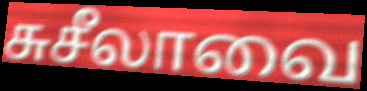
சுசீலாவை